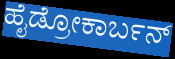
ಹೈಡ್ರೋಕಾರ್ಬನ್